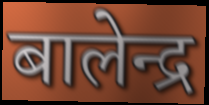
बालेन्द्र